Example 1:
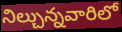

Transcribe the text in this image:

నిల్చున్నవారిలో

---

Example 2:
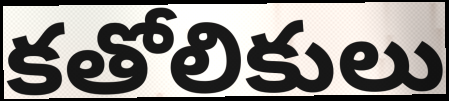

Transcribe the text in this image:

కతోలికులు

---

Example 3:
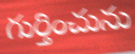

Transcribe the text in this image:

గుర్తించును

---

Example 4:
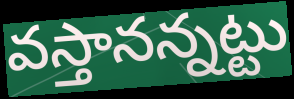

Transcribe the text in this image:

వస్తానన్నట్టు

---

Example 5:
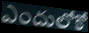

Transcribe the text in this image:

ఎందులోకో